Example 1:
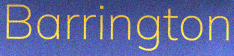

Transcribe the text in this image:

Barrington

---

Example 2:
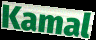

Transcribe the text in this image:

Kamal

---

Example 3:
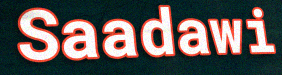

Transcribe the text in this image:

Saadawi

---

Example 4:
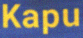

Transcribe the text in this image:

Kapu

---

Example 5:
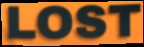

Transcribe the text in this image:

LOST